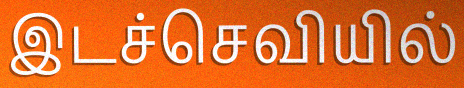
இடச்செவியில்